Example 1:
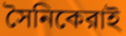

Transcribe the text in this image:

সৈনিকেরাই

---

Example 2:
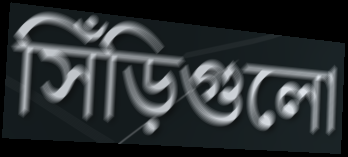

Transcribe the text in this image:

সিঁড়িগুলো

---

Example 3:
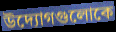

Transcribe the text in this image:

উদ্যোগগুলোকে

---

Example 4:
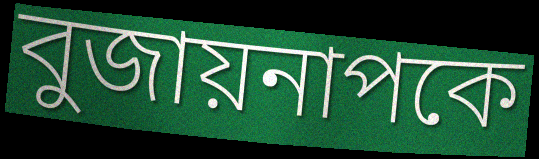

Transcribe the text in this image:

বুজায়নাপকে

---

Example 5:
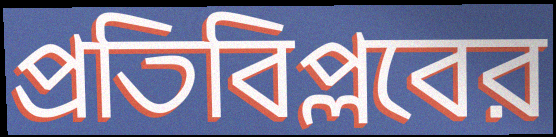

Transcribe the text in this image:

প্রতিবিপ্লবের